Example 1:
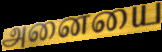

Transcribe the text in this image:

அனையை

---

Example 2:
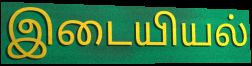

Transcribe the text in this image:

இடையியல்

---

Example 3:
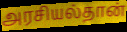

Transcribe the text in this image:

அரசியல்தான்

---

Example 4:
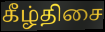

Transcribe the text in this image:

கீழ்திசை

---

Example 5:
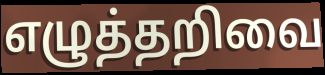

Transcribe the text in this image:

எழுத்தறிவை